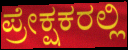
ಪ್ರೇಕ್ಷಕರಲ್ಲಿ